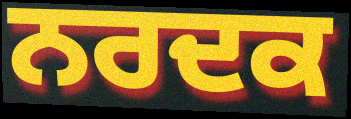
ਨਰਦਕ